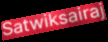
Satwiksairaj